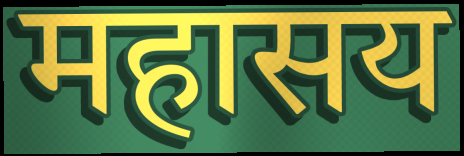
महासय